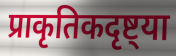
प्राकृतिकदृष्ट्या